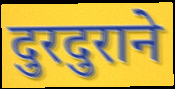
दुरदुराने